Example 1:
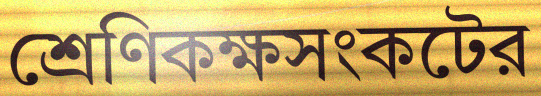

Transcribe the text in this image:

শ্রেণিকক্ষসংকটের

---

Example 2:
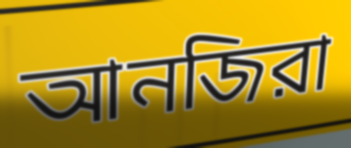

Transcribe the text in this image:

আনজিরা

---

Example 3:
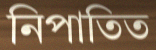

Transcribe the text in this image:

নিপাতিত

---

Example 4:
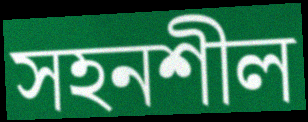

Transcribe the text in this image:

সহনশীল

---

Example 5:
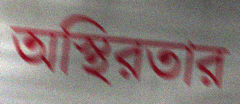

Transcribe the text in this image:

অস্থিরতার